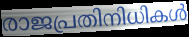
രാജപ്രതിനിധികൾ